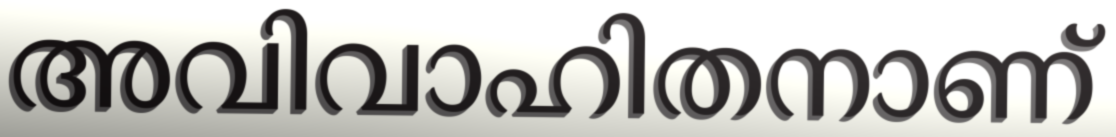
അവിവാഹിതനാണ്